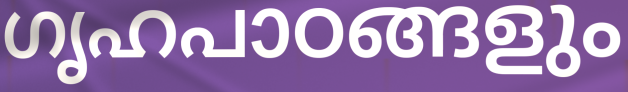
ഗൃഹപാഠങ്ങളും